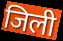
जिली